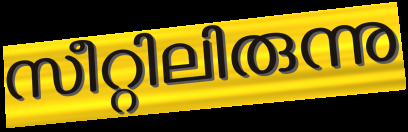
സീറ്റിലിരുന്നു